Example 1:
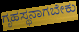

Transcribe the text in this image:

ಗೃಹಸ್ಥನಾಗಬೇಕು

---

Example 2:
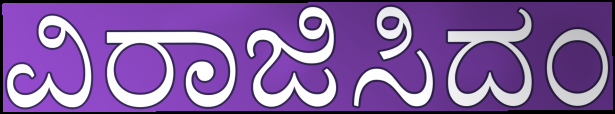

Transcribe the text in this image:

ವಿರಾಜಿಸಿದಂ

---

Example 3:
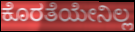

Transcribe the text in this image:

ಕೊರತೆಯೇನಿಲ್ಲ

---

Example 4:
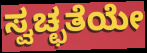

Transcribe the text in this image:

ಸ್ವಚ್ಛತೆಯೇ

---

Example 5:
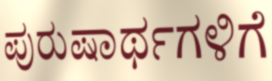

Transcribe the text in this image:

ಪುರುಷಾರ್ಥಗಳಿಗೆ